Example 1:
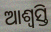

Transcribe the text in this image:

ଆଶ୍ଵସ୍ତି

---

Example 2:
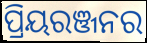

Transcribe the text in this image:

ପ୍ରିୟରଞ୍ଜନର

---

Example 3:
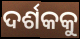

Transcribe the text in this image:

ଦର୍ଶକକୁ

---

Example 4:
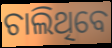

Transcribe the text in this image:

ଚାଲିଥିବେ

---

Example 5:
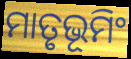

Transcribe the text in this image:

ମାତୃଭୂମିଂ